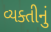
વ્યક્તીનું